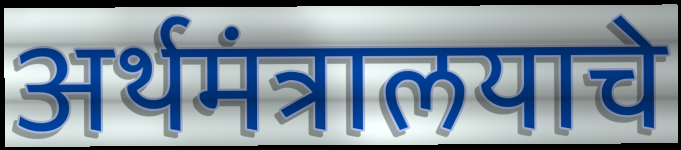
अर्थमंत्रालयाचे